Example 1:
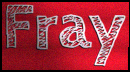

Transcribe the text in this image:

Fray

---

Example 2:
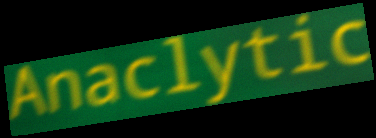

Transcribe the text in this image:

Anaclytic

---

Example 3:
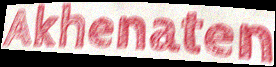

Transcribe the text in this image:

Akhenaten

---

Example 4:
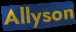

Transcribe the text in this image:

Allyson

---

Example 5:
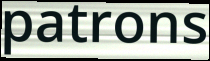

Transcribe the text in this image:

patrons